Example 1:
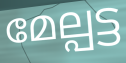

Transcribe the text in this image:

മേല്പട്ട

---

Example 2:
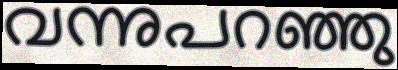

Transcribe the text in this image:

വന്നുപറഞ്ഞു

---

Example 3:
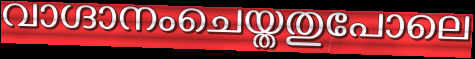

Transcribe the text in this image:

വാഗ്ദാനംചെയ്തതുപോലെ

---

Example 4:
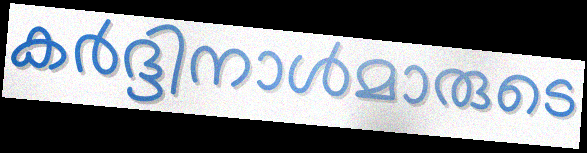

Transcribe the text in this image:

കർദ്ദിനാൾമാരുടെ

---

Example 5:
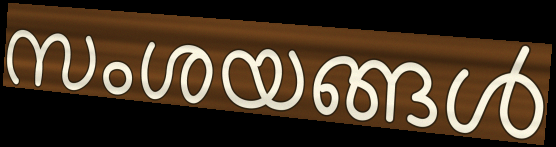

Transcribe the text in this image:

സംശയങ്ങൾ